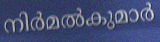
നിർമൽകുമാർ